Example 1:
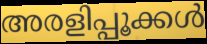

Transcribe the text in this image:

അരളിപ്പൂക്കൾ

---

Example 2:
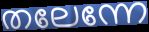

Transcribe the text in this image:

തലേന്നേ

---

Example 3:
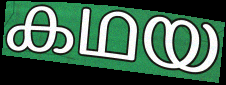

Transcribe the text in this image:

കഥയ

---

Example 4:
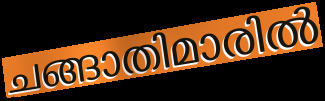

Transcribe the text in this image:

ചങ്ങാതിമാരിൽ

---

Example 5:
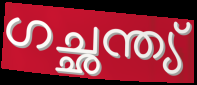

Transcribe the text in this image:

ഗച്ഛന്ത്യ്